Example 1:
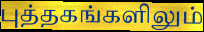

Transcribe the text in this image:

புத்தகங்களிலும்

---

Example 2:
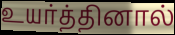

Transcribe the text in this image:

உயர்த்தினால்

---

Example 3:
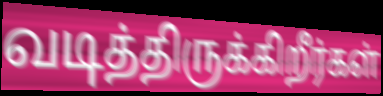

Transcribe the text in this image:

வடித்திருக்கிறீர்கள்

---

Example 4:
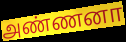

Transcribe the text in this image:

அண்ணனா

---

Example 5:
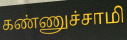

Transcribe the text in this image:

கண்ணுச்சாமி